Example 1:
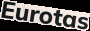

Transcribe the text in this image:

Eurotas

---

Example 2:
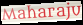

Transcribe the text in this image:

Maharaju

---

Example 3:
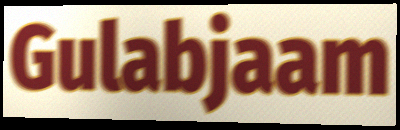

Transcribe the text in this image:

Gulabjaam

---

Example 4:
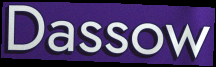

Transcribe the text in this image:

Dassow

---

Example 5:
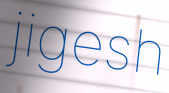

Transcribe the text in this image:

jigesh